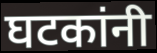
घटकांनी